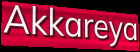
Akkareya